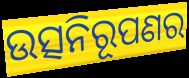
ଉତ୍ସନିରୂପଣର